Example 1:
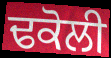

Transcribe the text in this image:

ਢਕੋਲੀ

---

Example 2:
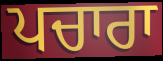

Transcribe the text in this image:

ਪਚਾਰਾ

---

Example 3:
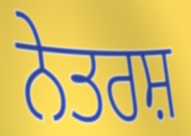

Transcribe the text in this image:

ਨੇਤਰਸ਼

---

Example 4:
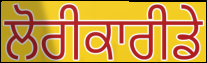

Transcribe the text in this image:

ਲੋਰੀਕਾਰੀਡੇ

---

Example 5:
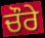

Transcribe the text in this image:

ਚੌਰੇ